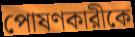
পোষণকারীকে